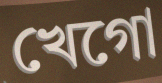
খেগো